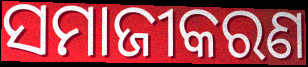
ସମାଜୀକରଣ